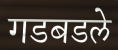
गडबडले